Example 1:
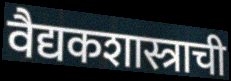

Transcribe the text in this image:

वैद्यकशास्त्राची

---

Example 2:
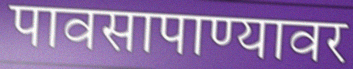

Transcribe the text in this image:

पावसापाण्यावर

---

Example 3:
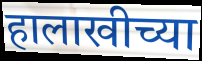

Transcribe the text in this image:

हालाखीच्या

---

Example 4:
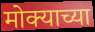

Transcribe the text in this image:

मोक्याच्या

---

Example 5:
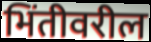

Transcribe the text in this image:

भिंतीवरील